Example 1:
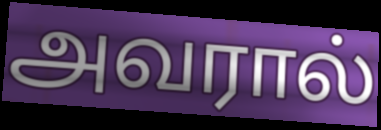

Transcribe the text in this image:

அவரால்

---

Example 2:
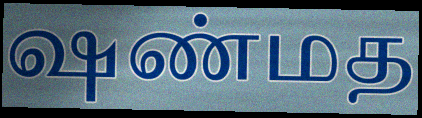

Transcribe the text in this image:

ஷண்மத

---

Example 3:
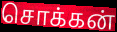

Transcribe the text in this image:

சொக்கன்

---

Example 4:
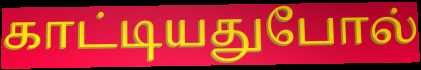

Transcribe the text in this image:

காட்டியதுபோல்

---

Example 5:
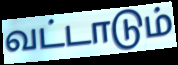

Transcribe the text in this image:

வட்டாடும்